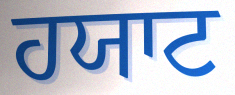
ਹਯਾਟ